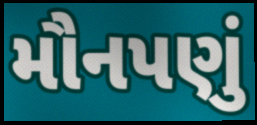
મૌનપણું